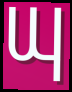
யு